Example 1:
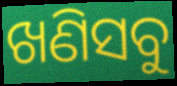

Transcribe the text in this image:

ଖଣିସବୁ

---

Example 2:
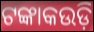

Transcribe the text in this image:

ଟଙ୍କାକଉଡ଼ି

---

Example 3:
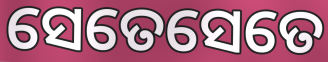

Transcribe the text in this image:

ସେତେସେତେ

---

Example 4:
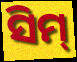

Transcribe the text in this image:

ସିମ୍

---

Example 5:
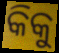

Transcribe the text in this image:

କିକୁ